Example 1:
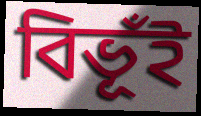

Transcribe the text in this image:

বিভূঁই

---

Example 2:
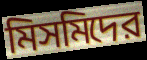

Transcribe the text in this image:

মিসমিদের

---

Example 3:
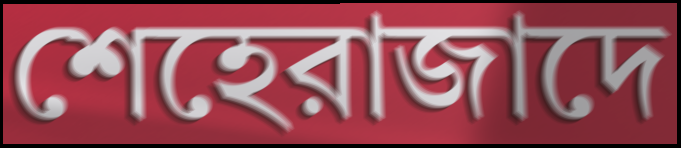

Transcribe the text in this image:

শেহেরাজাদে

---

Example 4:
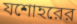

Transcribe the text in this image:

যশোহরের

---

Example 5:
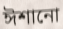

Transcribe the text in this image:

ঈশানো